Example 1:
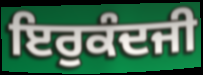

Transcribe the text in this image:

ਇਰੁਕੰਦਜੀ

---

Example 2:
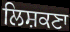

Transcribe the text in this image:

ਲਿਸ਼ਕਣਾ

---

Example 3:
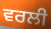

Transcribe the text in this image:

ਵਰਲੀ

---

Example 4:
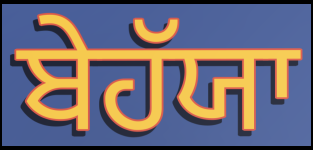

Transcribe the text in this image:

ਬੇਹੱਯਾ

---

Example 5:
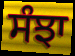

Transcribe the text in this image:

ਸੰਝਾ